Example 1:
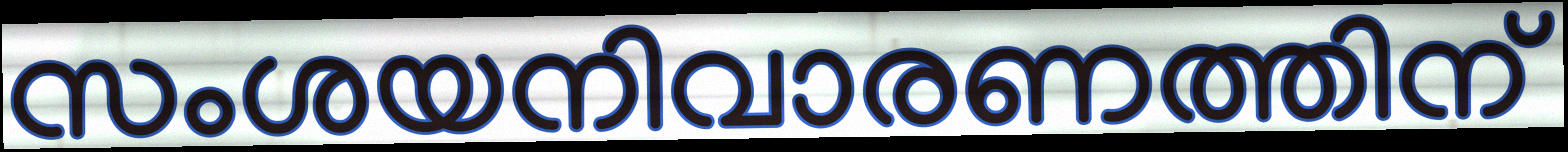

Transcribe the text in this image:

സംശയനിവാരണത്തിന്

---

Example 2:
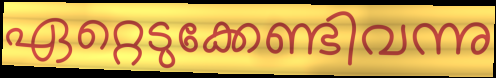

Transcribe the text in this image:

ഏറ്റെടുക്കേണ്ടിവന്നു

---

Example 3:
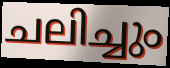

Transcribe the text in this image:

ചലിച്ചും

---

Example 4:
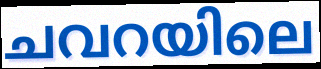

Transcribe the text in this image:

ചവറയിലെ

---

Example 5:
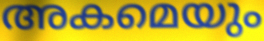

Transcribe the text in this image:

അകമെയും